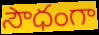
సౌధంగా